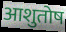
आशुतोष